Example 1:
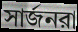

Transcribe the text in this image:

সার্জনরা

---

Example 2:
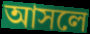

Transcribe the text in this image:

আসলে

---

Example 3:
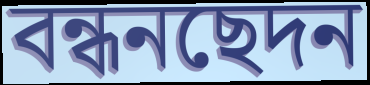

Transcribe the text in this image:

বন্ধনছেদন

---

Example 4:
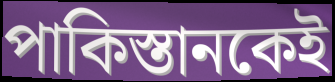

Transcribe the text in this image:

পাকিস্তানকেই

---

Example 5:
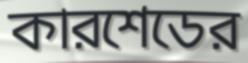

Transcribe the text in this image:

কারশেডের